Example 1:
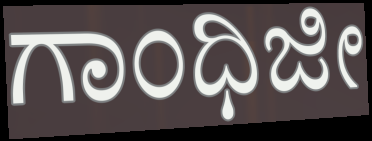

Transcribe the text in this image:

ಗಾಂಧಿಜೀ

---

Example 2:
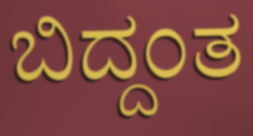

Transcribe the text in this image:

ಬಿದ್ದಂತ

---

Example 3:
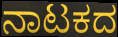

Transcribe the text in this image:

ನಾಟಕದ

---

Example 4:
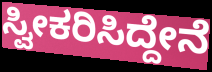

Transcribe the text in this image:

ಸ್ವೀಕರಿಸಿದ್ದೇನೆ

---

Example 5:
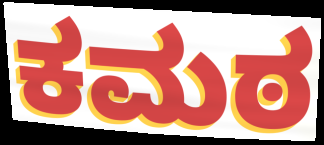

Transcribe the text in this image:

ಕಮಠ